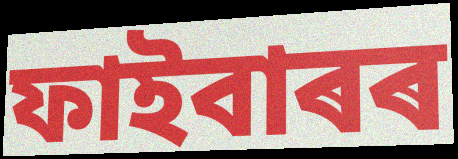
ফাইবাৰৰ